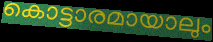
കൊട്ടാരമായാലും